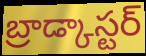
బ్రాడ్కాస్టర్